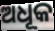
ଅଧୂକ